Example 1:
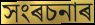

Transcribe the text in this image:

সংৰচনাৰ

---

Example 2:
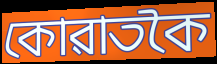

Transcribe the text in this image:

কোৱাতকৈ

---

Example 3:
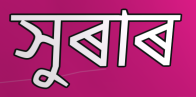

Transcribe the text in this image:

সুৰাৰ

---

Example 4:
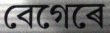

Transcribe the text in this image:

বেগেৰে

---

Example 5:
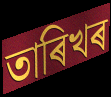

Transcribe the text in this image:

তাৰিখৰ